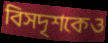
বিসদৃশকেও